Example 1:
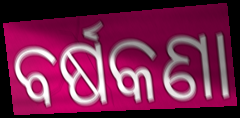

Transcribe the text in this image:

ବର୍ଷକଣା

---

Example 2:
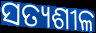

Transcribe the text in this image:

ସତ୍ୟଶୀଳ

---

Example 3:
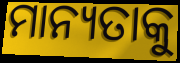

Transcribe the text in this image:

ମାନ୍ୟତାକୁ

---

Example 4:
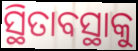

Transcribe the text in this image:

ସ୍ଥିତାବସ୍ଥାକୁ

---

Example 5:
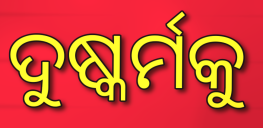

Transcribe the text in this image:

ଦୁଷ୍କର୍ମକୁ